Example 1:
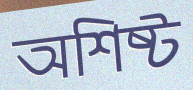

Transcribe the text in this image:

অশিষ্ট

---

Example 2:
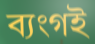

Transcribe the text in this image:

ব্যংগই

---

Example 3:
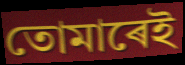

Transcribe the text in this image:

তোমাৰেই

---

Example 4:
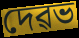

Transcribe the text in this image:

দেৱভ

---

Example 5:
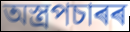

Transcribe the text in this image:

অস্ত্ৰপচাৰৰ